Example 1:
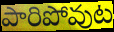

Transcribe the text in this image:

పారిపోవుట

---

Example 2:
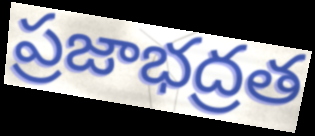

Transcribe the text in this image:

ప్రజాభద్రత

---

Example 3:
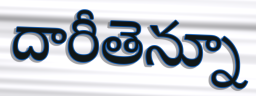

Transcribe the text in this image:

దారీతెన్నూ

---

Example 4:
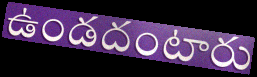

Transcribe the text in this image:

ఉండదంటారు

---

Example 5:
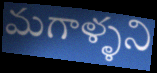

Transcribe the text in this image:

మగాళ్ళని